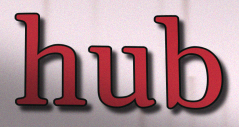
hub